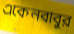
একেনবাবুর